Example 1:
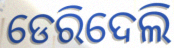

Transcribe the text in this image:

ଡେରିଦେଲି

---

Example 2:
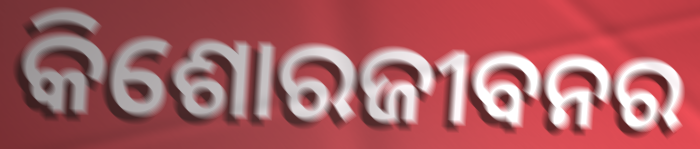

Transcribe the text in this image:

କିଶୋରଜୀବନର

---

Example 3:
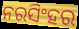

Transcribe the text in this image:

ନରସିଂହର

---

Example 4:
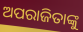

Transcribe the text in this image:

ଅପରାଜିତାଙ୍କୁ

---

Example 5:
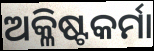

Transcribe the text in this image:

ଅକ୍ଳିଷ୍ଟକର୍ମା